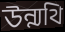
উন্মথি